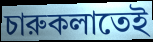
চারুকলাতেই